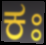
ಕಃ